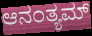
ಆನಂತ್ಯಮ್